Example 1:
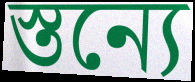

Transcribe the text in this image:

স্তন্যে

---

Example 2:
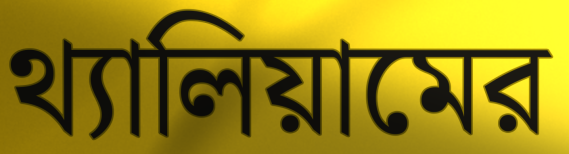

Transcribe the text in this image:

থ্যালিয়ামের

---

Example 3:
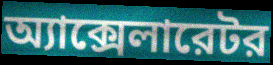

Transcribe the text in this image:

অ্যাক্সেলারেটর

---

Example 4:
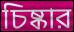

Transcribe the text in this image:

চিষ্কার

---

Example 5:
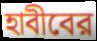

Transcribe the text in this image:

হাবীবের